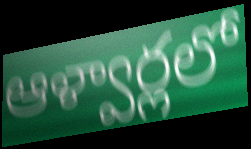
ఆళ్వార్లలో